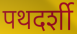
पथदर्शी